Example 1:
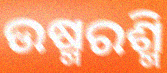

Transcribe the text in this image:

ଉଷ୍ମରଶ୍ମି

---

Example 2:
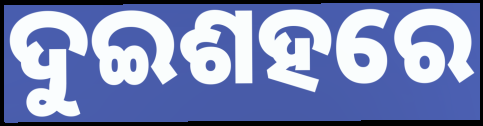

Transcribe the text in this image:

ଦୁଇଶହରେ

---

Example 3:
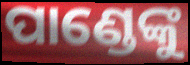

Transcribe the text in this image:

ପାଣ୍ଡେଙ୍କୁ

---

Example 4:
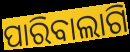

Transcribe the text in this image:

ପାରିବାଲାଗି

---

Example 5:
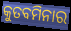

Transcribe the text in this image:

କୁତବମିନାର